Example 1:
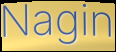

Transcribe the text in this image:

Nagin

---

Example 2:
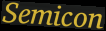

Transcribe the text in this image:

Semicon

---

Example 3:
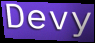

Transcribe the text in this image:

Devy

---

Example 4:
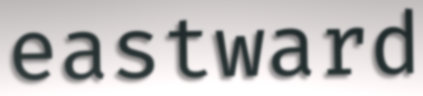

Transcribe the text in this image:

eastward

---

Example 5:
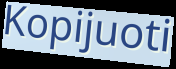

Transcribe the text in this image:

Kopijuoti